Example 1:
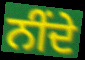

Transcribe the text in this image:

ਨੀਂਦੇ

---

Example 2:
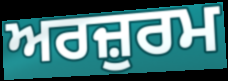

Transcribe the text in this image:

ਅਰਜ਼ੁਰਮ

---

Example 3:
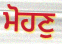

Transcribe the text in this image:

ਮੋਹਣੁ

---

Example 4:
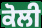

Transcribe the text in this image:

ਕੋਲੀ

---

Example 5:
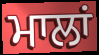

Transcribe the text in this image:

ਮਾਲਾਂ